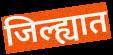
जिल्ह्यात